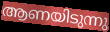
ആണയിടുന്നു